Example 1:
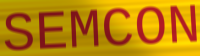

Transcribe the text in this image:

SEMCON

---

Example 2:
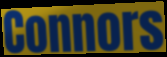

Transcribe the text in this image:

Connors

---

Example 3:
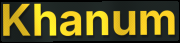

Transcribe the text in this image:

Khanum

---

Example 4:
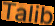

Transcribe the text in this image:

Talib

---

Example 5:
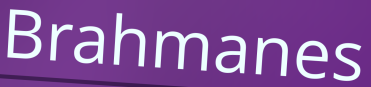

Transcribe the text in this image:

Brahmanes